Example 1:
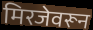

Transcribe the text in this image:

मिरजेवरून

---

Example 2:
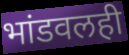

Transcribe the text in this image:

भांडवलही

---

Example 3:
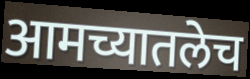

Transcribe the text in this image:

आमच्यातलेच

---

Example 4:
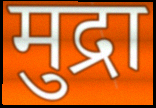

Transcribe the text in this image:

मुद्रा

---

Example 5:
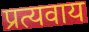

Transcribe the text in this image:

प्रत्यवाय